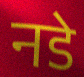
नडे